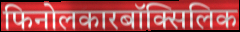
फिनोलकारबॉक्सिलिक